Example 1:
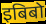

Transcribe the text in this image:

इबिबो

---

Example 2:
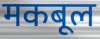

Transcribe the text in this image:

मकबूल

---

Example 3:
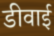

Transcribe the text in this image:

डीवाई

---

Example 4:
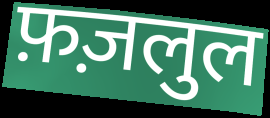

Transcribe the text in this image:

फ़ज़लुल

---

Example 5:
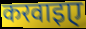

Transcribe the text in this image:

करवाइए